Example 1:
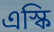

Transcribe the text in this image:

এস্কি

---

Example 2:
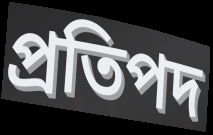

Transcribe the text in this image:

প্রতিপদ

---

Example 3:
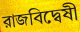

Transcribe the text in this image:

রাজবিদ্বেষী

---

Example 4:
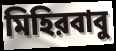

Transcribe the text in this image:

মিহিরবাবু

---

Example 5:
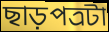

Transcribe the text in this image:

ছাড়পত্রটা